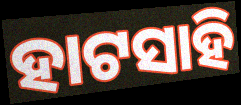
ହାଟସାହି